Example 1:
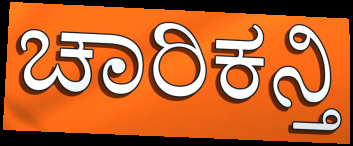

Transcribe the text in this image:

ಚಾರಿಕನ್ತಿ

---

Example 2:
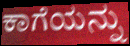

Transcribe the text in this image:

ಕಾಗೆಯನ್ನು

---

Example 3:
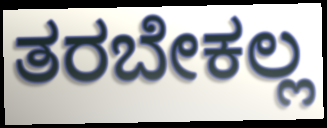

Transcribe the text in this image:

ತರಬೇಕಲ್ಲ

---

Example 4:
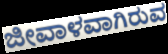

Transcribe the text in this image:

ಜೀವಾಳವಾಗಿರುವ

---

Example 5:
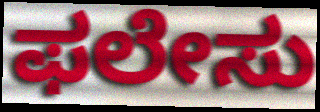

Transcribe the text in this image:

ಫಲೇಸು